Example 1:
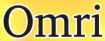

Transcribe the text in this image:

Omri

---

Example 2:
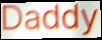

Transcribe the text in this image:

Daddy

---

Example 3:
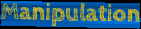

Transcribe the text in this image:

Manipulation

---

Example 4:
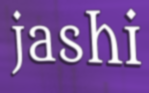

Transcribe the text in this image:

jashi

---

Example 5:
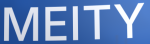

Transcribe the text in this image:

MEITY